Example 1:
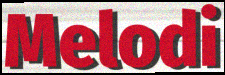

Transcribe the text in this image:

Melodi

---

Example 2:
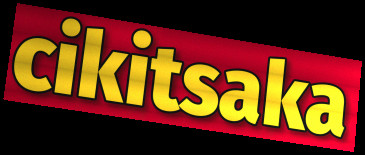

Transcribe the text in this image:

cikitsaka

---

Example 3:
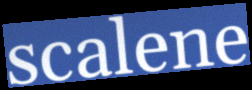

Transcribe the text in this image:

scalene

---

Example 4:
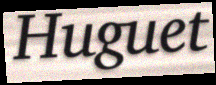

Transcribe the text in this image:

Huguet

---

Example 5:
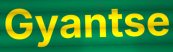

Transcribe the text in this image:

Gyantse